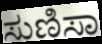
ಸುಣಿಸಾ